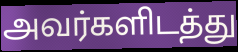
அவர்களிடத்து